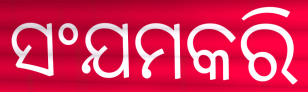
ସଂଯମକରି